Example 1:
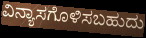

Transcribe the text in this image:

ವಿನ್ಯಾಸಗೊಳಿಸಬಹುದು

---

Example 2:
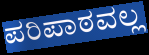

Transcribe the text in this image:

ಪರಿಪಾಠವಲ್ಲ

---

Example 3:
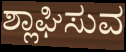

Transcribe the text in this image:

ಶ್ಲಾಘಿಸುವ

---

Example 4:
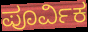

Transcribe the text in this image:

ಪೂರ್ವಿಕ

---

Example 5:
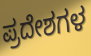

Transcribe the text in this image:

ಪ್ರದೇಶಗಳ